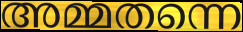
അമ്മതന്നെ